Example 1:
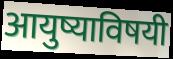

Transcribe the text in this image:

आयुष्याविषयी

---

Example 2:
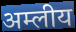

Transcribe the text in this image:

अम्‍लीय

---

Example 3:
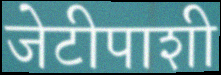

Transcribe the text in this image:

जेटीपाशी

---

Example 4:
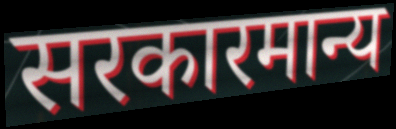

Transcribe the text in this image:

सरकारमान्य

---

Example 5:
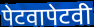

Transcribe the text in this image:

पेटवापेटवी